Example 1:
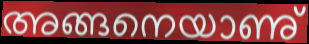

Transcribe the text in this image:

അങ്ങനെയാണു്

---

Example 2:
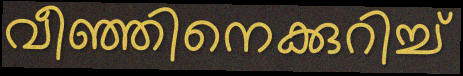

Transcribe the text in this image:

വീഞ്ഞിനെക്കുറിച്ച്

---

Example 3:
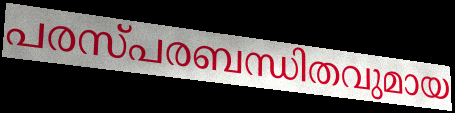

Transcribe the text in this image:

പരസ്പരബന്ധിതവുമായ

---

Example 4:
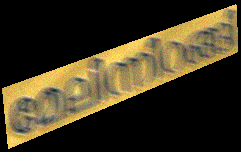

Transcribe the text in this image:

മേലിന്നിറങ്ങി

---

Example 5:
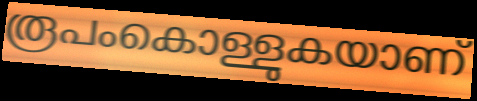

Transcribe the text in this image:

രൂപംകൊള്ളുകയാണ്